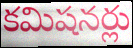
కమిషనర్లు